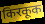
किरकूक